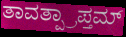
ತಾವತ್ಪ್ರಾಪ್ತಮ್